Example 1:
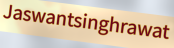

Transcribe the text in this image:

Jaswantsinghrawat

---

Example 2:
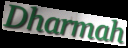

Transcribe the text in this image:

Dharmah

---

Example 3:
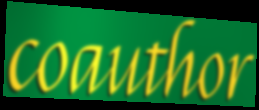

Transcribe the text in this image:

coauthor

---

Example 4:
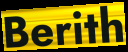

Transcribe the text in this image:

Berith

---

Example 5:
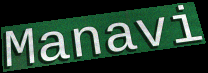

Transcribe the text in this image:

Manavi